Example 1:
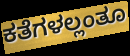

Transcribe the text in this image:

ಕತೆಗಳಲ್ಲಂತೂ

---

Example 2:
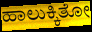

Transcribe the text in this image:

ಹಾಲುಕ್ಕಿತೋ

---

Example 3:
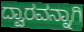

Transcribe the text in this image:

ದ್ವಾರವನ್ನಾಗಿ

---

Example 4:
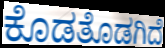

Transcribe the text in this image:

ಕೊಡತೊಡಗಿದೆ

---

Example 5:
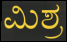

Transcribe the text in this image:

ಮಿಶ್ರ